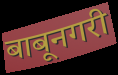
बाबूनगरी